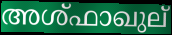
അശ്ഫാഖുല്